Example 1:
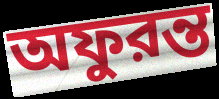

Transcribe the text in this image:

অফুরন্ত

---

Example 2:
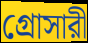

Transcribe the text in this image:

গ্রোসারী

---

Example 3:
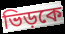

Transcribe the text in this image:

ভিড়কে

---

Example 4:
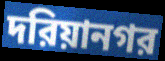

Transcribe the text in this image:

দরিয়ানগর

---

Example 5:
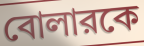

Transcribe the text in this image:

বোলারকে